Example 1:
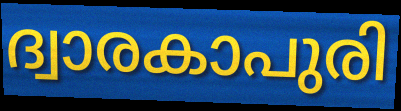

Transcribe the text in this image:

ദ്വാരകാപുരി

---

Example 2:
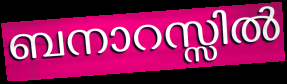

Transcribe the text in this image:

ബനാറസ്സിൽ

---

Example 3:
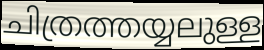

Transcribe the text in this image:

ചിത്രത്തയ്യലുള്ള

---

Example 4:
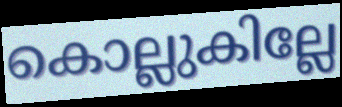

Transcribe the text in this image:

കൊല്ലുകില്ലേ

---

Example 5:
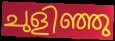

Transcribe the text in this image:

ചുളിഞ്ഞു